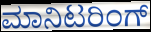
ಮಾನಿಟರಿಂಗ್